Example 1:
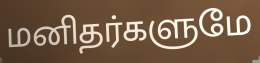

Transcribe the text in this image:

மனிதர்களுமே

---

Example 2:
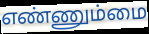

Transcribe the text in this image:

எண்ணும்மை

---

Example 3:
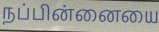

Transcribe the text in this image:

நப்பின்னையை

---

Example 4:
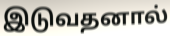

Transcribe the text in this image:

இடுவதனால்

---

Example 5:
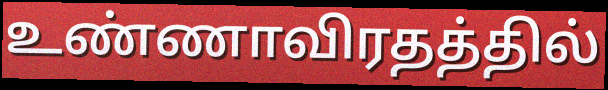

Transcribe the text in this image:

உண்ணாவிரதத்தில்